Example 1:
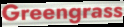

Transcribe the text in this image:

Greengrass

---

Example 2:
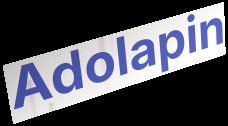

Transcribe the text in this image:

Adolapin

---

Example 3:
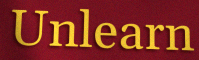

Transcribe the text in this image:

Unlearn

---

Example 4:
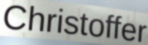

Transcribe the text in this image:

Christoffer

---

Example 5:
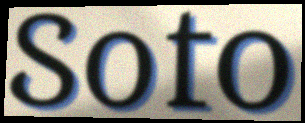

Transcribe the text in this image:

Soto